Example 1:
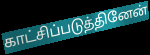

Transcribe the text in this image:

காட்சிப்படுத்தினேன்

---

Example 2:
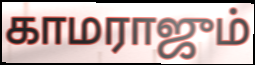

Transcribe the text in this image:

காமராஜும்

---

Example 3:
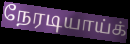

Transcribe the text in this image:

நேரடியாய்க்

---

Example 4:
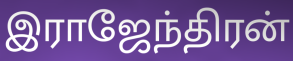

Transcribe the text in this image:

இராஜேந்திரன்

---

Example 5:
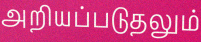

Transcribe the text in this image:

அறியப்படுதலும்